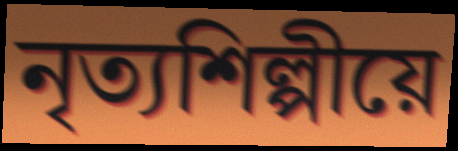
নৃত্যশিল্পীয়ে